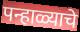
पन्हाळ्याचे